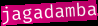
jagadamba